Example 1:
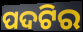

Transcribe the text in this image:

ପଦଟିର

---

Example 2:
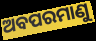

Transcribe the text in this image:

ଅବପରମାଣୁ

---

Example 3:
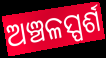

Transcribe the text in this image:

ଅଞ୍ଚଳସ୍ପର୍ଶ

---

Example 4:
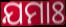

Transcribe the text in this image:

ଯମାଃ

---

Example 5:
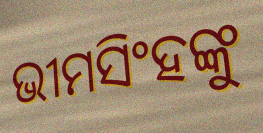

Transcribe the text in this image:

ଭୀମସିଂହଙ୍କୁ